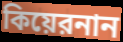
কিয়েরনান